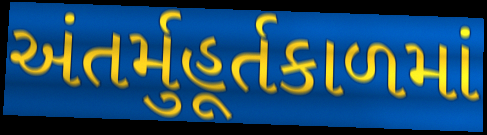
અંતર્મુહૂર્તકાળમાં